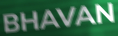
BHAVAN